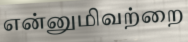
என்னுமிவற்றை